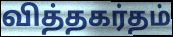
வித்தகர்தம்